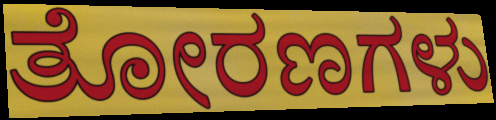
ತೋರಣಗಳು